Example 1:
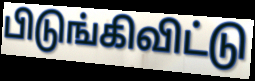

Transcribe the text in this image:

பிடுங்கிவிட்டு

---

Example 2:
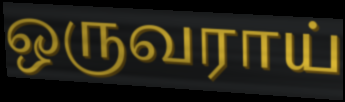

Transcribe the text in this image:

ஒருவராய்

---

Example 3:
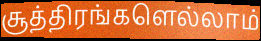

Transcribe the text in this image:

சூத்திரங்களெல்லாம்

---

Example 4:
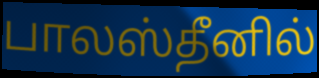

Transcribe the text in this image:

பாலஸ்தீனில்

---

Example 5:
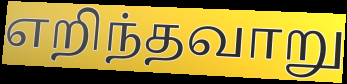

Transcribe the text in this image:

எறிந்தவாறு